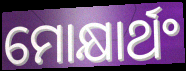
ମୋକ୍ଷାର୍ଥଂ